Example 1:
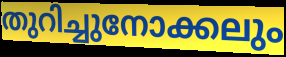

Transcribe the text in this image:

തുറിച്ചുനോക്കലും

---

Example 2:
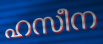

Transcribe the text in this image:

ഹസീന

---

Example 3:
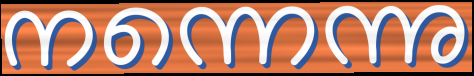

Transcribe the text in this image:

നന്നെന്നു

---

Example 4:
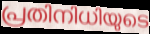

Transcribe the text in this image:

പ്രതിനിധിയുടെ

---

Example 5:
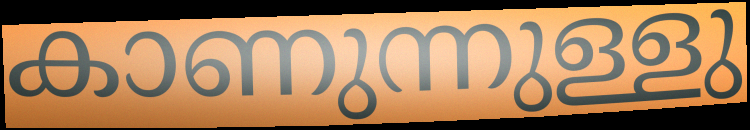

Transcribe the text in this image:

കാണുന്നുള്ളു